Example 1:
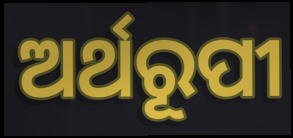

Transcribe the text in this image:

ଅର୍ଥରୂପୀ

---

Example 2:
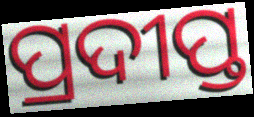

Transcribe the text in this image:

ପ୍ରଦୀପ୍ତ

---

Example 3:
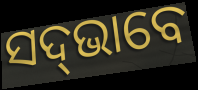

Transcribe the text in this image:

ସଦ୍‌ଭାବେ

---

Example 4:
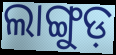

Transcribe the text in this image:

ଲାଙ୍ଗୁଡ଼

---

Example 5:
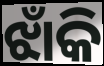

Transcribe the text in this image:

ଝାଁକି